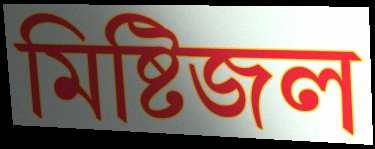
মিষ্টিজল